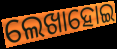
ଲେଖାହୋଇ